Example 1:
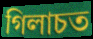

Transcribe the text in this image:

গিলাচত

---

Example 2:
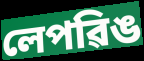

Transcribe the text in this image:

লেপৱিঙ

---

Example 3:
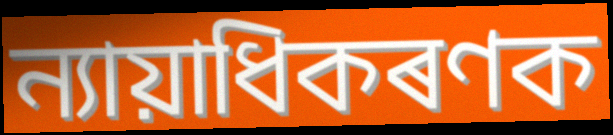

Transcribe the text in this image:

ন্যায়াধিকৰণক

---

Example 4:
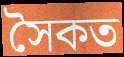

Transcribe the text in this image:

সৈকত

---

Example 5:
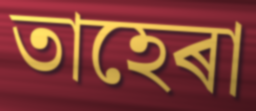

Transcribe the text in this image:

তাহেৰা